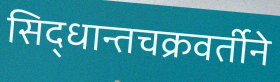
सिद्धान्तचक्रवर्तीने